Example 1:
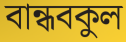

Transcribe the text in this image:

বান্ধবকুল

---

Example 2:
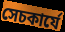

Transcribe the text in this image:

সেচকার্যে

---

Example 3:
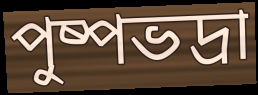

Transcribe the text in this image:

পুষ্পভদ্রা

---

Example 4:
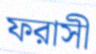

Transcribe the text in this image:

ফরাসী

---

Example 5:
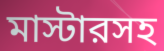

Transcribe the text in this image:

মাস্টারসহ